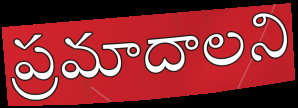
ప్రమాదాలని